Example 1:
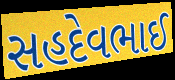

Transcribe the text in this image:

સહદેવભાઈ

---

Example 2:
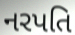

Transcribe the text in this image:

નરપતિ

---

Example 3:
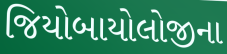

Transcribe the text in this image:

જિયોબાયોલોજીના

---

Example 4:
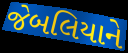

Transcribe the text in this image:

જેબલિયાને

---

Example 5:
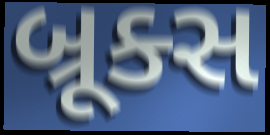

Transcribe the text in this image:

બ્રૂક્સ